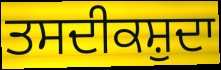
ਤਸਦੀਕਸ਼ੁਦਾ